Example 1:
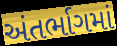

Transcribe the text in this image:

અંતર્ભાગમાં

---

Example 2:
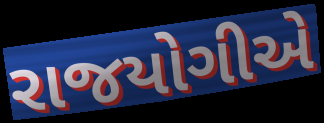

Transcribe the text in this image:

રાજયોગીએ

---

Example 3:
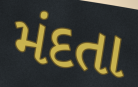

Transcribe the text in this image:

મંદતા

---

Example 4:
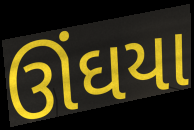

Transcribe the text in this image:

ઊંઘયા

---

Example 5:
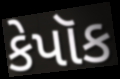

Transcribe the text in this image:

કેપૉક